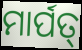
ମାର୍ପତ୍